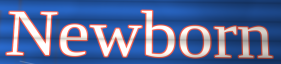
Newborn